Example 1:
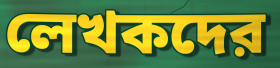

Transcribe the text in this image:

লেখকদের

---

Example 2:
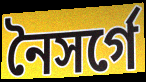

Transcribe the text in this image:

নৈসর্গে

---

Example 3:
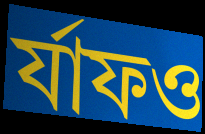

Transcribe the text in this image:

র্যাফও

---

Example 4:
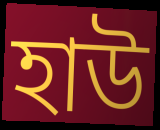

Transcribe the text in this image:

হাউ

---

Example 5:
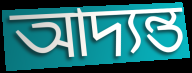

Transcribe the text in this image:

আদ্যন্ত